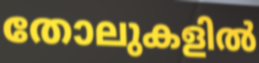
തോലുകളിൽ